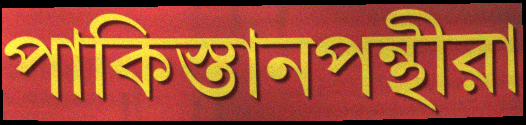
পাকিস্তানপন্থীরা